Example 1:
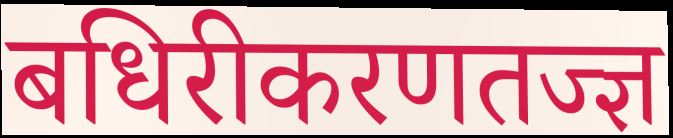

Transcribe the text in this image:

बधिरीकरणतज्ज्ञ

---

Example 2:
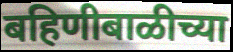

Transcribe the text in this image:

बहिणीबाळीच्या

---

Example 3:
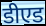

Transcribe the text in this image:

डीएड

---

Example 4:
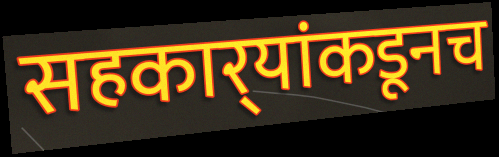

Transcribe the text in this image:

सहकार्‍यांकडूनच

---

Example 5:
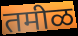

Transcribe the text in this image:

तमीळ